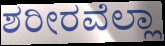
ಶರೀರವೆಲ್ಲಾ